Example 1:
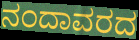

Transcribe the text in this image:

ನಂದಾವರದ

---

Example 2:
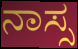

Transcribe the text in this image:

ನಾಸ್ಸ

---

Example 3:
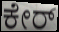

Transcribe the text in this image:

ಕೇರ್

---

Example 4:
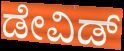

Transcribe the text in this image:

ಡೇವಿಡ್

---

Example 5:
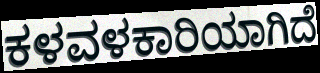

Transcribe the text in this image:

ಕಳವಳಕಾರಿಯಾಗಿದೆ